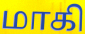
மாகி